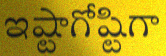
ఇష్టాగోష్టిగా